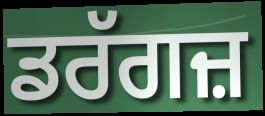
ਡਰੱਗਜ਼